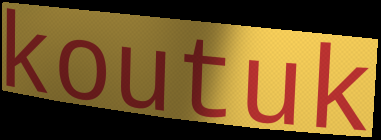
koutuk